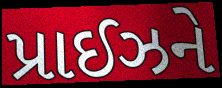
પ્રાઈઝને